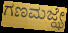
ಗಣಮಜ್ಝೇ